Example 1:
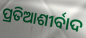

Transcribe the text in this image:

ପ୍ରତିଆଶୀର୍ବାଦ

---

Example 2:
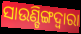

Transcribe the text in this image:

ସାଉଣ୍ଡିଙ୍ଗଦ୍ୱାରା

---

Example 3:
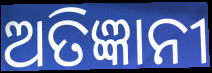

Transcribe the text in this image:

ଅତିଜ୍ଞାନୀ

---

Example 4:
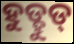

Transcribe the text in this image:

ହୁଡ୍ହୁଡ୍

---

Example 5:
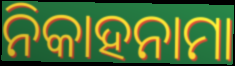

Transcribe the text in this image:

ନିକାହନାମା